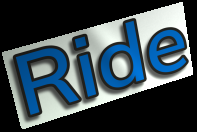
Ride